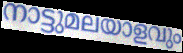
നാട്ടുമലയാളവും